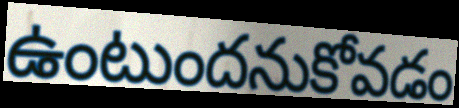
ఉంటుందనుకోవడం